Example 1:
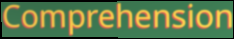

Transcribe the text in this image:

Comprehension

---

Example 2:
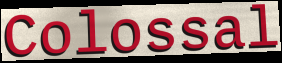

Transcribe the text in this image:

Colossal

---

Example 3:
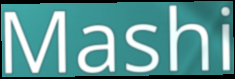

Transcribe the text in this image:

Mashi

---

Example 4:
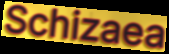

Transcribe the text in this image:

Schizaea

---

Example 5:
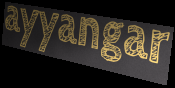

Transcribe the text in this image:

ayyangar